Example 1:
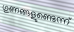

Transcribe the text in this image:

ഗുണങ്ങളുണ്ടെന്ന്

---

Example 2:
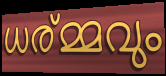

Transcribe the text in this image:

ധര്മ്മവും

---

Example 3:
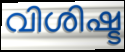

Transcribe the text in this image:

വിശിഷ്ട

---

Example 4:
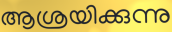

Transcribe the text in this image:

ആശ്രയിക്കുന്നു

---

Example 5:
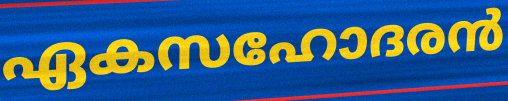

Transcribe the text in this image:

ഏകസഹോദരൻ